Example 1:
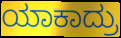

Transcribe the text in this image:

ಯಾಕಾದ್ರು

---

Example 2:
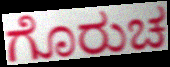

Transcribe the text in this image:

ಗೊರುಚ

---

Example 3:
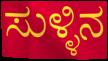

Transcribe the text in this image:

ಸುಳ್ಳಿನ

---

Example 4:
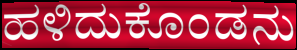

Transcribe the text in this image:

ಹಳಿದುಕೊಂಡನು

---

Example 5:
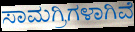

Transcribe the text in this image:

ಸಾಮಗ್ರಿಗಳಾಗಿವೆ